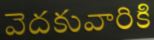
వెదకువారికి